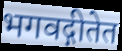
भगवद्गीतेत